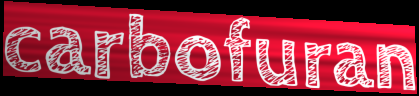
carbofuran